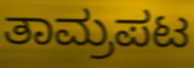
ತಾಮ್ರಪಟ